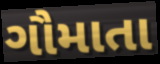
ગૌમાતા